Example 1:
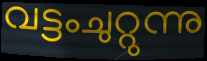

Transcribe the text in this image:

വട്ടംചുറ്റുന്നു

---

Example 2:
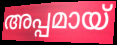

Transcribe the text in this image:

അപ്പമായ്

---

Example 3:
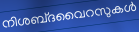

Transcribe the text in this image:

നിശബ്‌ദവൈറസുകൾ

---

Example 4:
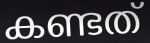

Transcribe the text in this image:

കണ്ടത്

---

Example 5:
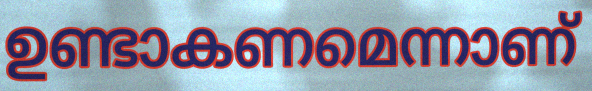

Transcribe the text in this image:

ഉണ്ടാകണമെന്നാണ്